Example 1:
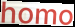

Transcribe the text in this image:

homo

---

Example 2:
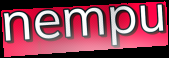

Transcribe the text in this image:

nempu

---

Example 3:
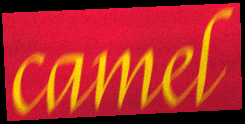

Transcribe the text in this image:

camel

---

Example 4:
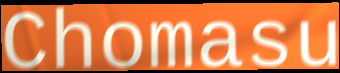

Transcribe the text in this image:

Chomasu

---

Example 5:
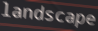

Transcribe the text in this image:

landscape